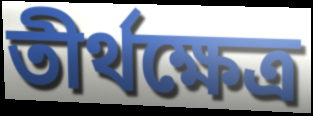
তীর্থক্ষেত্র